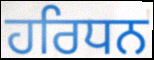
ਹਰਿਧਨ